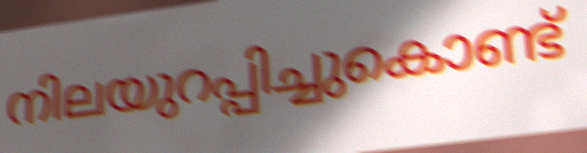
നിലയുറപ്പിച്ചുകൊണ്ട്